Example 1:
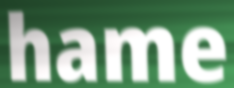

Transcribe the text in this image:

hame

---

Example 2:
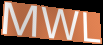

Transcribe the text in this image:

MWL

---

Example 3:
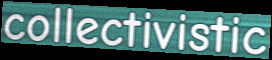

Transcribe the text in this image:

collectivistic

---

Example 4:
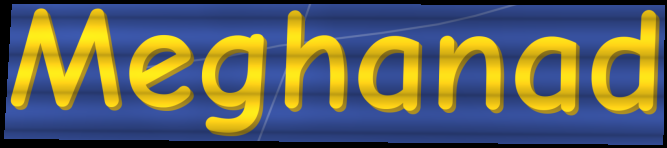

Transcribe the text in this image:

Meghanad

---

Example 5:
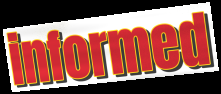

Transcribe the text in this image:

informed